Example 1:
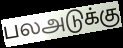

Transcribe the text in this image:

பலஅடுக்கு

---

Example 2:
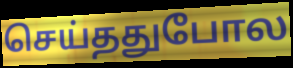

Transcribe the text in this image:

செய்ததுபோல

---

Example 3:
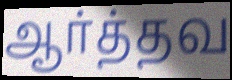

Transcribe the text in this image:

ஆர்த்தவ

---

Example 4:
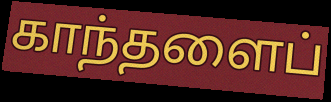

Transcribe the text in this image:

காந்தளைப்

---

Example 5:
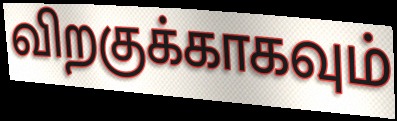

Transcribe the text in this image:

விறகுக்காகவும்